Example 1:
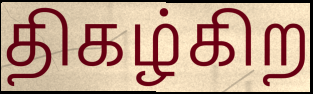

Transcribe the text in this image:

திகழ்கிற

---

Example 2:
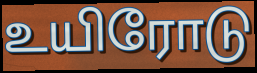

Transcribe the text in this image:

உயிரோடு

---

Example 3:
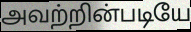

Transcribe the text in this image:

அவற்றின்படியே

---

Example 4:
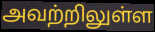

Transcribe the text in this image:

அவற்றிலுள்ள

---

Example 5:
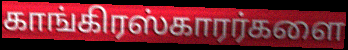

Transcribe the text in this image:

காங்கிரஸ்காரர்களை